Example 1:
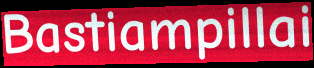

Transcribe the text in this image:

Bastiampillai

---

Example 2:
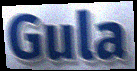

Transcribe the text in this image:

Gula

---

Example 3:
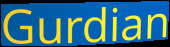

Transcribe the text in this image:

Gurdian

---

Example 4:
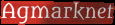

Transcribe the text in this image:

Agmarknet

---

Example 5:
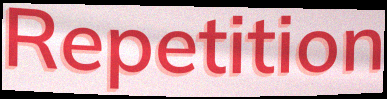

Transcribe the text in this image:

Repetition